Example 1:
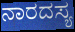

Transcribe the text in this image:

ನಾರದಸ್ಯ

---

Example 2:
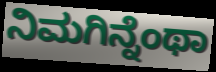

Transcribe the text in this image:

ನಿಮಗಿನ್ನೆಂಥಾ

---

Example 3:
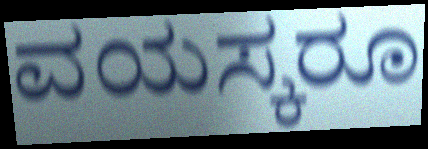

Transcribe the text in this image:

ವಯಸ್ಕರೂ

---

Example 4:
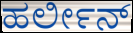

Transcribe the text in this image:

ಹರ್ಲೀನ್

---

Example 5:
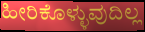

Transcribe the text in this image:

ಹೀರಿಕೊಳ್ಳುವುದಿಲ್ಲ